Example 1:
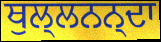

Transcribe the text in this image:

ਥੁਲ੍ਲਨਨ੍ਦਾ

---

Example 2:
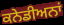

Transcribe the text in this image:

ਕਨੇਡੀਅਨਾਂ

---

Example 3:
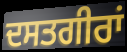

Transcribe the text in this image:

ਦਸਤਗੀਰਾਂ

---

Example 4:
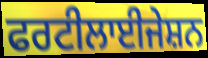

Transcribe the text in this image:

ਫਰਟੀਲਾਈਜੇਸ਼ਨ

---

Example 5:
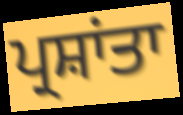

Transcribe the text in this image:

ਪ੍ਰਸ਼ਾਂਤਾ